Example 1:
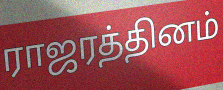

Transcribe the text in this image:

ராஜரத்தினம்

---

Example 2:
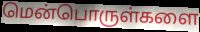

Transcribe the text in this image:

மென்பொருள்களை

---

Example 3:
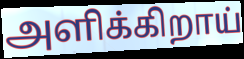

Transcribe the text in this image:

அளிக்கிறாய்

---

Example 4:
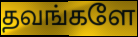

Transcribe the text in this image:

தவங்களே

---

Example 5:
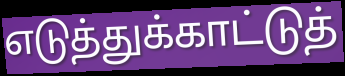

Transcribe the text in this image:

எடுத்துக்காட்டுத்